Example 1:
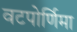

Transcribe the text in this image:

वटपोर्णिमा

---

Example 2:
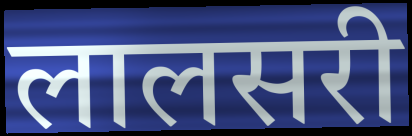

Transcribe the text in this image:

लालसरी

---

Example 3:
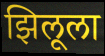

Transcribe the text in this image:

झिलूला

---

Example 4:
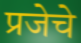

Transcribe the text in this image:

प्रजेचे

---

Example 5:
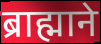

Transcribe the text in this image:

ब्राह्माने